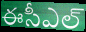
ఈసీఎల్